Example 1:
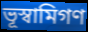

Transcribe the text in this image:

ভূস্বামিগণ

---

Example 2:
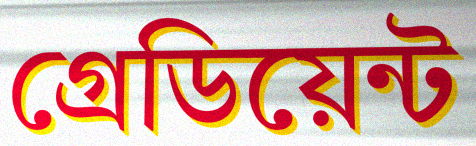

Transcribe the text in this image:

গ্রেডিয়েন্ট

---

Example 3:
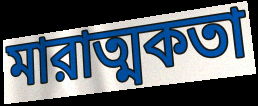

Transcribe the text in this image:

মারাত্মকতা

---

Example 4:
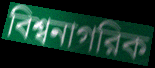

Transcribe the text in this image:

বিশ্বনাগরিক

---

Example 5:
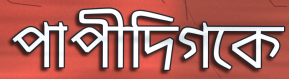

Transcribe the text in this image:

পাপীদিগকে